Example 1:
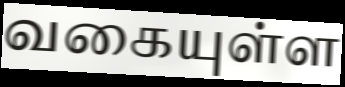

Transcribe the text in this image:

வகையுள்ள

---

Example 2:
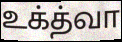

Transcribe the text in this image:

உக்த்வா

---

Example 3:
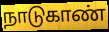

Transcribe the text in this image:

நாடுகாண்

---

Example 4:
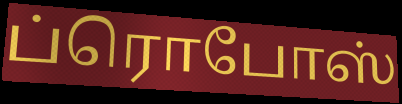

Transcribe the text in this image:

ப்ரொபோஸ்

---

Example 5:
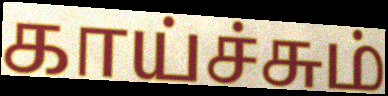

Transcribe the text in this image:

காய்ச்சும்